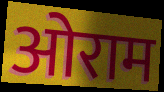
ओराम